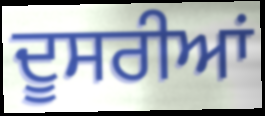
ਦੂਸਰੀਆਂ